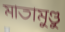
মাতামুণ্ডু